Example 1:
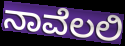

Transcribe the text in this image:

ನಾವೆಲಲಿ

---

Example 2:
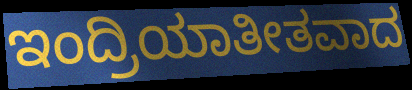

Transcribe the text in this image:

ಇಂದ್ರಿಯಾತೀತವಾದ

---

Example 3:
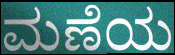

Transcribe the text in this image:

ಮಣೆಯ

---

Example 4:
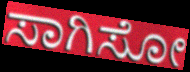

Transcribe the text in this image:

ಸಾಗಿಸೋ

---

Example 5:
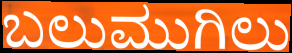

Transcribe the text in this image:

ಬಲುಮುಗಿಲು